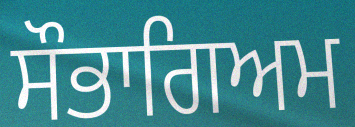
ਸੌਭਾਗਿਅਮ